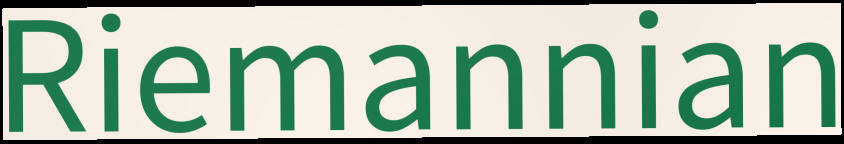
Riemannian